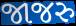
જાજરુ